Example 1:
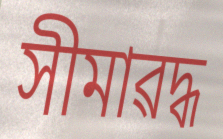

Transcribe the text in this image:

সীমাৱদ্ধ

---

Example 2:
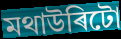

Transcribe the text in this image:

মথাউৰিটো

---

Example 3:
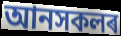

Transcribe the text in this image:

আনসকলৰ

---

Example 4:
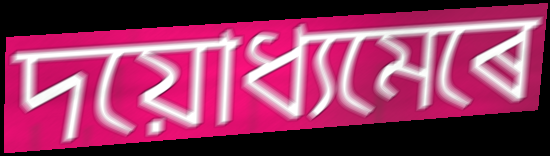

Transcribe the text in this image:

দয়োধ্যমেৰে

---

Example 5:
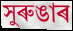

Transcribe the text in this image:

সুৰুঙাৰ